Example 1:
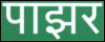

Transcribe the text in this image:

पाझर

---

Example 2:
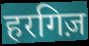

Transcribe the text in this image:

हरगिज़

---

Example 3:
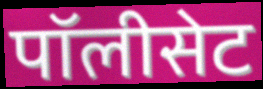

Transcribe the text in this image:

पॉलीसेट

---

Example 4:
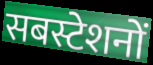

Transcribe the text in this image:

सबस्टेशनों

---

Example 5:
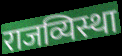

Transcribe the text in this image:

राजव्यिस्था